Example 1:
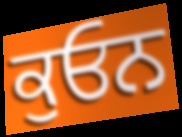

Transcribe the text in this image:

ਕੁਓਨ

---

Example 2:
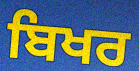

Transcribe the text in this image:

ਬਿਖਰ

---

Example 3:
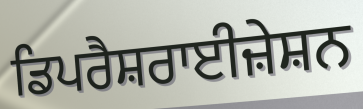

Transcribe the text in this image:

ਡਿਪਰੈਸ਼ਰਾਈਜ਼ੇਸ਼ਨ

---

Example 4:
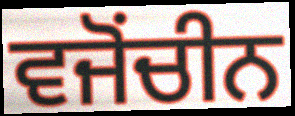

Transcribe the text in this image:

ਵਜੋਂਚੀਨ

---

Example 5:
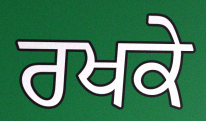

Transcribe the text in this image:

ਰਖਕੇ